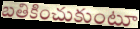
బతికించుకుంటూ